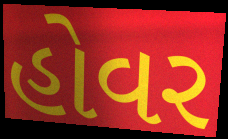
હોવર